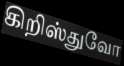
கிறிஸ்துவோ